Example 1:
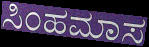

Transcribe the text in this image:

ಸಿಂಹಮಾಸ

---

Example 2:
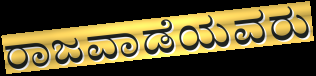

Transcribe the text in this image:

ರಾಜವಾಡೆಯವರು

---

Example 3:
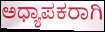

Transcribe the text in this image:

ಅಧ್ಯಾಪಕರಾಗಿ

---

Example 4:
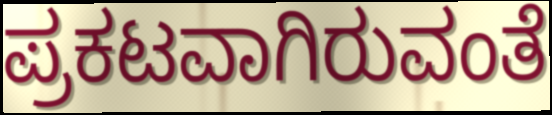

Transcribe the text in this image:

ಪ್ರಕಟವಾಗಿರುವಂತೆ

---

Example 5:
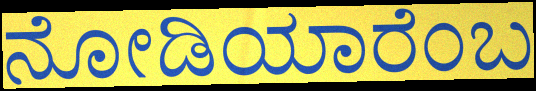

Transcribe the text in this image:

ನೋಡಿಯಾರೆಂಬ